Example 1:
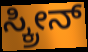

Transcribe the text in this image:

ಸ್ಕ್ರೀನ್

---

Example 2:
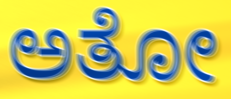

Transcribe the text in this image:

ಅತೋ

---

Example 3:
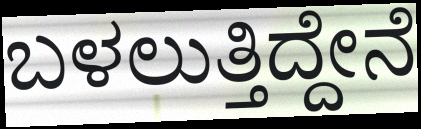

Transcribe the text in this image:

ಬಳಲುತ್ತಿದ್ದೇನೆ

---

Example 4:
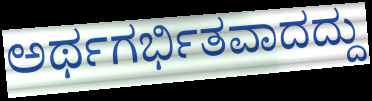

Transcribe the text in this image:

ಅರ್ಥಗರ್ಭಿತವಾದದ್ದು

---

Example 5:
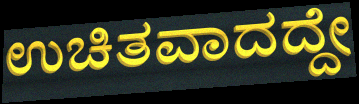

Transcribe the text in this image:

ಉಚಿತವಾದದ್ದೇ